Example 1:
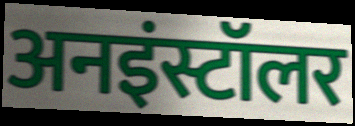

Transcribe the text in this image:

अनइंस्टॉलर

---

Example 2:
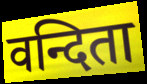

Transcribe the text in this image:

वन्दिता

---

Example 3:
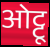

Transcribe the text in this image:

ओट्टू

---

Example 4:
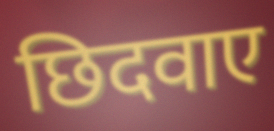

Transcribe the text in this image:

छिदवाए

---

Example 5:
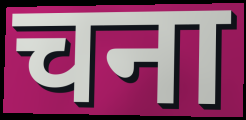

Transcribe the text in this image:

चना